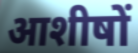
आशीषों